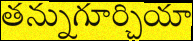
తన్నుగూర్చియా